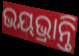
ଭୟଭ୍ରାନ୍ତି